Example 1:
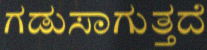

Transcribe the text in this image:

ಗಡುಸಾಗುತ್ತದೆ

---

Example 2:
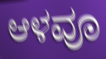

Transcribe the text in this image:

ಆಳವೂ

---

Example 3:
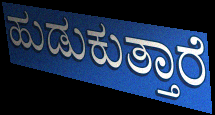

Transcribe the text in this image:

ಹುಡುಕುತ್ತಾರೆ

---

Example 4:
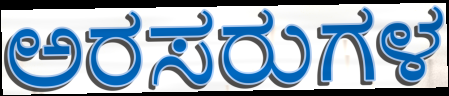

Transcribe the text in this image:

ಅರಸರುಗಳ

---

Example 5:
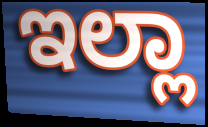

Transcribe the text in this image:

ಇಲ್ಲಾ